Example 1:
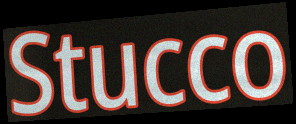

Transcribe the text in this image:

Stucco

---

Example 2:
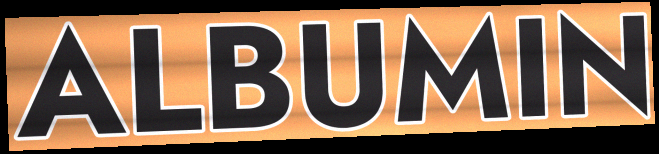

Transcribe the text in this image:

ALBUMIN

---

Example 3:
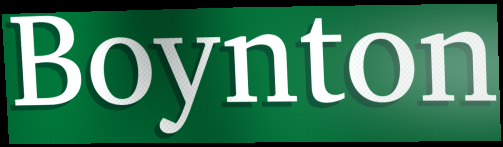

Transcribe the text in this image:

Boynton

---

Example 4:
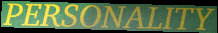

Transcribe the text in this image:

PERSONALITY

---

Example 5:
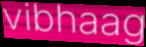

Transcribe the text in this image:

vibhaag